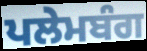
ਪਲੇਮਬੰਗ